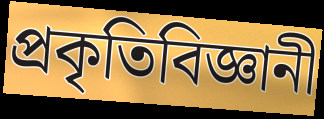
প্রকৃতিবিজ্ঞানী